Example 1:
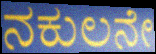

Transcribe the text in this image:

ನಕುಲನೇ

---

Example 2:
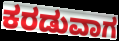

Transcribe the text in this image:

ಕರಡುವಾಗ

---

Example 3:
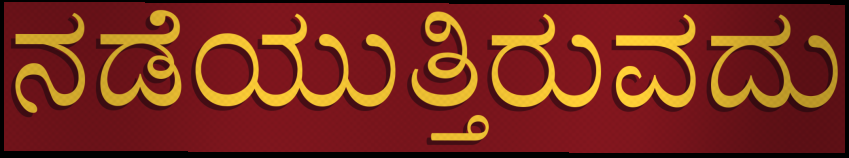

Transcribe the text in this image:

ನಡೆಯುತ್ತಿರುವದು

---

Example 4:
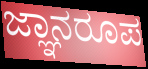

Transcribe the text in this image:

ಜ್ಞಾನರೂಪ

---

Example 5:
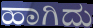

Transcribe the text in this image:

ಹಾಗಿದು